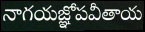
నాగయజ్ఞోపవీతాయ